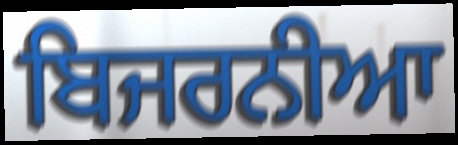
ਬਿਜਰਨੀਆ